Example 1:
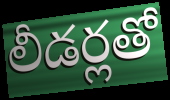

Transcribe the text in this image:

లీడర్లతో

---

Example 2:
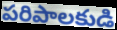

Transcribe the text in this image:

పరిపాలకుడి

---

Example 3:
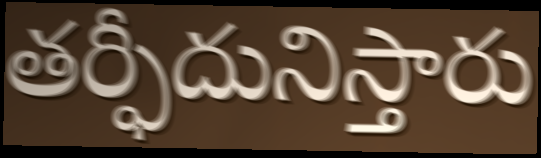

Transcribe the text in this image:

తర్ఫీదునిస్తారు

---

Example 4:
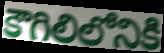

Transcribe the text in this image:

కౌగిలిలోనికి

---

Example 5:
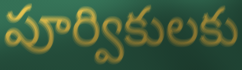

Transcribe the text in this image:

పూర్వికులకు